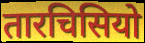
तारचिसियो